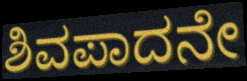
ಶಿವಪಾದನೇ